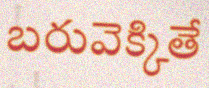
బరువెక్కితే